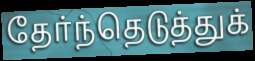
தேர்ந்தெடுத்துக்